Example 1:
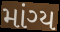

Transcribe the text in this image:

માંગ્ય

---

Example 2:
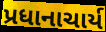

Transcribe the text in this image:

પ્રધાનાચાર્ય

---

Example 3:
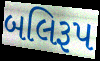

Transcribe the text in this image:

બલિરૂપ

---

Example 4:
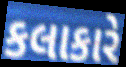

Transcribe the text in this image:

કલાકારે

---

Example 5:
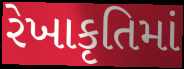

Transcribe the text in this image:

રેખાકૃતિમાં